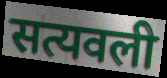
सत्यवली